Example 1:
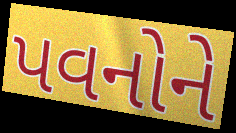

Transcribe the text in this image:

પવનોને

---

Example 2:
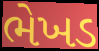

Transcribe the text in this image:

ભેખડ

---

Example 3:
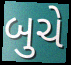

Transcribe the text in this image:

બુચે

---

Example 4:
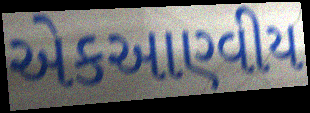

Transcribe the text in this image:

એકઆણ્વીય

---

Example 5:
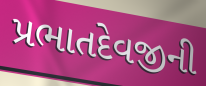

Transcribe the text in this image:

પ્રભાતદેવજીની